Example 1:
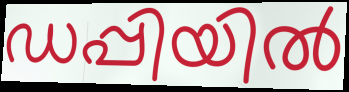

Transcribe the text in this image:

ഡപ്പിയിൽ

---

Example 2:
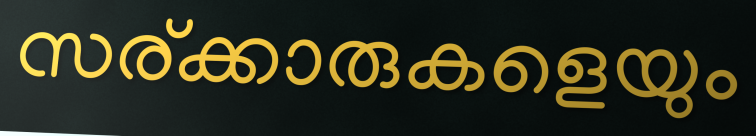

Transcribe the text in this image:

സര്ക്കാരുകളെയും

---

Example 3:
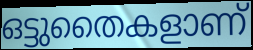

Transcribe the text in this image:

ഒട്ടുതൈകളാണ്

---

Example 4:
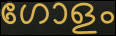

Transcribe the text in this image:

ഗോളം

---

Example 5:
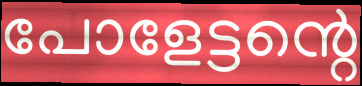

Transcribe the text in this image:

പോളേട്ടന്റെ